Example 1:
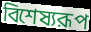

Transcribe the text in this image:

বিশেষ্যরূপ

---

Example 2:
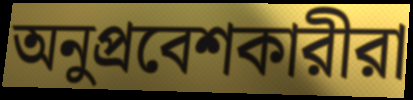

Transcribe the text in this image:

অনুপ্রবেশকারীরা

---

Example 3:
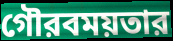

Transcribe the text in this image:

গৌরবময়তার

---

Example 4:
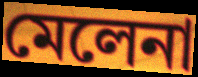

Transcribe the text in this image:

মেলেনা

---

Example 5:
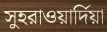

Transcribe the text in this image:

সুহরাওয়ার্দিয়া